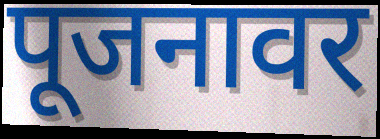
पूजनावर